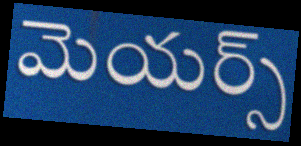
మెయర్స్